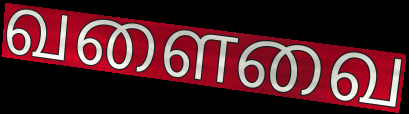
வளைவை